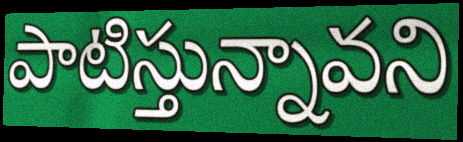
పాటిస్తున్నావని